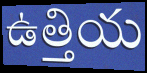
ఉత్తియ